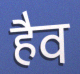
हैव